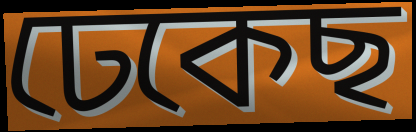
ঢেকেছ